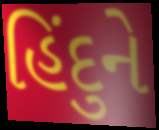
હિંદુને